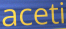
aceti